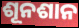
ଶୂନଶାନ